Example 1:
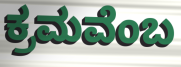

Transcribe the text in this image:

ಕ್ರಮವೆಂಬ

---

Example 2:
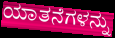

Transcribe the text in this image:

ಯಾತನೆಗಳನ್ನು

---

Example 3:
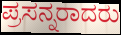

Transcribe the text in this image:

ಪ್ರಸನ್ನರಾದರು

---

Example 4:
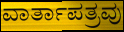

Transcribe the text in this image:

ವಾರ್ತಾಪತ್ರವು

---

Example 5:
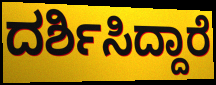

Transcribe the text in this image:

ದರ್ಶಿಸಿದ್ದಾರೆ